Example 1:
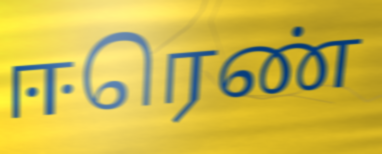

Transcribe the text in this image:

ஈரெண்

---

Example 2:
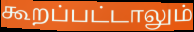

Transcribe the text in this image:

கூறப்பட்டாலும்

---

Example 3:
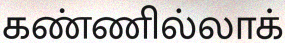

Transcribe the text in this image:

கண்ணில்லாக்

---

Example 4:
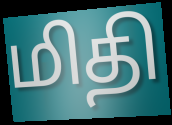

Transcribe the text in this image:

மிதி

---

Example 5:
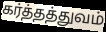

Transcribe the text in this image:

கர்த்தத்துவம்